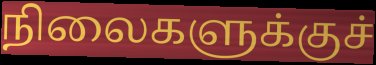
நிலைகளுக்குச்